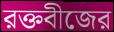
রক্তবীজের